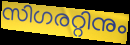
സിഗരറ്റിനും